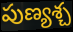
పుణ్యశ్చ